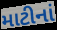
માટીનાં